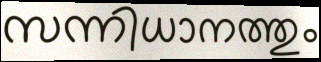
സന്നിധാനത്തും